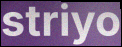
striyo